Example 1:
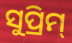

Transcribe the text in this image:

ସୁପ୍ରିମ୍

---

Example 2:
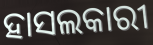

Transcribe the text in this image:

ହାସଲକାରୀ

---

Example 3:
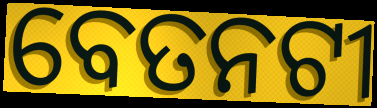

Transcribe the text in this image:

ବେତନଟୀ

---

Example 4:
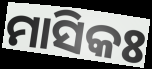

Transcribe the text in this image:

ମାସିକଃ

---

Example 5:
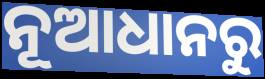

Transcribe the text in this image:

ନୂଆଧାନରୁ